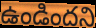
ఉండిందని